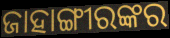
ଜାହାଙ୍ଗୀରଙ୍କର